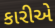
કારીએ